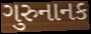
ગુરુનાનક